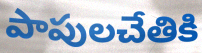
పాపులచేతికి